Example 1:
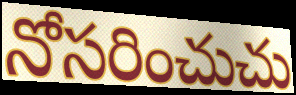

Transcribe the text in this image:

నోసరించుచు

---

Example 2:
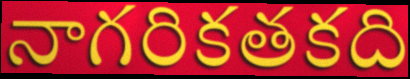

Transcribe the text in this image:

నాగరికతకది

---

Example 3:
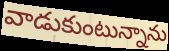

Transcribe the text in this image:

వాడుకుంటున్నాను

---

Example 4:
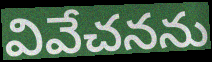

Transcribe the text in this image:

వివేచనను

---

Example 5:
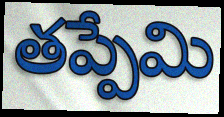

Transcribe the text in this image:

తప్పేమి